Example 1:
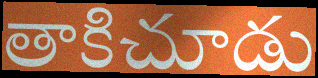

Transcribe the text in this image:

తాకిచూడు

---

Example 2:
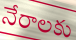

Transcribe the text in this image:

నేరాలకు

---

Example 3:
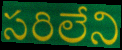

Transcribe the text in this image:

సరిలేని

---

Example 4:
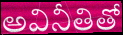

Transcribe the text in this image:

అవినీతితో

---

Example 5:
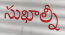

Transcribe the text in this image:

సుఖాల్నీ